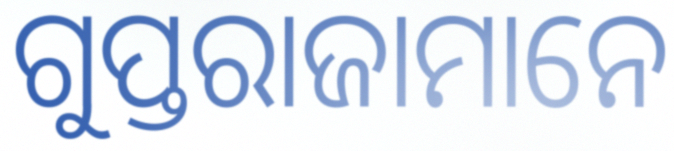
ଗୁପ୍ତରାଜାମାନେ